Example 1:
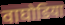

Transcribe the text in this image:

वाघोडिया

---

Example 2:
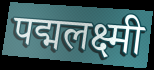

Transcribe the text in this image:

पद्मलक्ष्मी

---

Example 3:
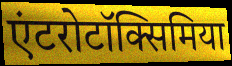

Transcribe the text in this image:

एंटरोटॉक्सिमिया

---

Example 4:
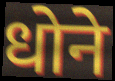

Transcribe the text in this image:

धोने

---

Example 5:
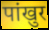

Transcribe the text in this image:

पांखुर